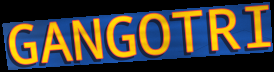
GANGOTRI